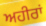
ਅਹੀਰਾਂ